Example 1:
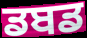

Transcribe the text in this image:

ਡਬਡ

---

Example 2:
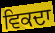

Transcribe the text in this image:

ਵਿਕਦਾ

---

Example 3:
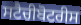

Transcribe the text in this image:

ਸਟੈਚੀਬੋਟਰੀਸ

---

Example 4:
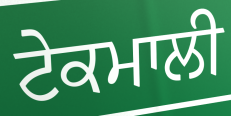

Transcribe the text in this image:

ਟੇਕਮਾਲੀ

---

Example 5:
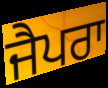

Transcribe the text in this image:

ਜੈਪਰਾ